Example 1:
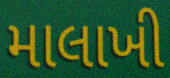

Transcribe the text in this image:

માલાખી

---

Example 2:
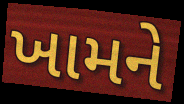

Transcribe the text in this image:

ખામને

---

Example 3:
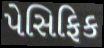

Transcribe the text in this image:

પેસિફિક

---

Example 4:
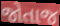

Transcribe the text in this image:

જોતાજ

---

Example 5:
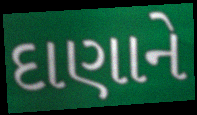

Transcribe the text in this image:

દાણાને